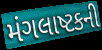
મંગલાષ્ટકની